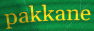
pakkane